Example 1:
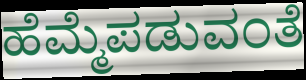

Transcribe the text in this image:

ಹೆಮ್ಮೆಪಡುವಂತೆ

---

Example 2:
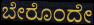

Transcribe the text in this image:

ಬೇರೊಂದೇ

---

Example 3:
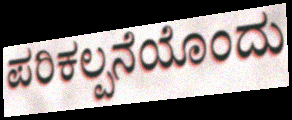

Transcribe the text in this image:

ಪರಿಕಲ್ಪನೆಯೊಂದು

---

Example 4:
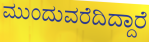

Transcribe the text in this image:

ಮುಂದುವರೆದಿದ್ದಾರೆ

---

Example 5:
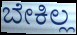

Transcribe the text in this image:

ಬೇಕಿಲ್ಲ